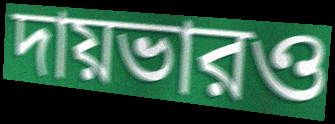
দায়ভারও